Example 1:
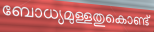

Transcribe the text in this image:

ബോധ്യമുള്ളതുകൊണ്ട്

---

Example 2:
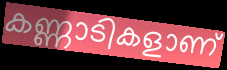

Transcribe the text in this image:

കണ്ണാടികളാണ്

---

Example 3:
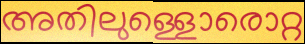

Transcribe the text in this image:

അതിലുള്ളൊരൊറ്റ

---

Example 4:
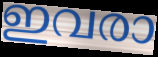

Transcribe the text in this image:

ഇവരാ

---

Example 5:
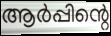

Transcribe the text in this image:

ആർപ്പിന്റെ